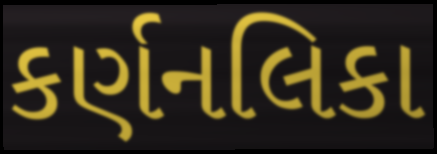
કર્ણનલિકા